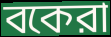
বকেরা